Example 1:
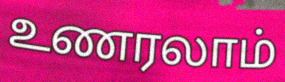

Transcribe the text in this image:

உணரலாம்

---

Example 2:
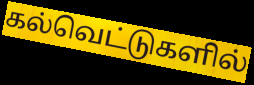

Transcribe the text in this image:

கல்வெட்டுகளில்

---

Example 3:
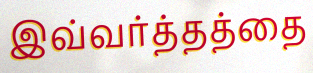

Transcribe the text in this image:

இவ்வர்த்தத்தை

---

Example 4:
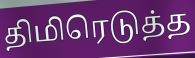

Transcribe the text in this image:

திமிரெடுத்த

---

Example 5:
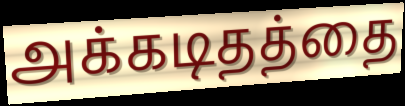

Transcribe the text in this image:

அக்கடிதத்தை